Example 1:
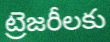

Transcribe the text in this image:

ట్రెజరీలకు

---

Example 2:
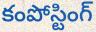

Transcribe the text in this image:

కంపోస్టింగ్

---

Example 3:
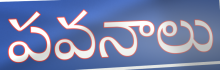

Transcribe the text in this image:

పవనాలు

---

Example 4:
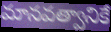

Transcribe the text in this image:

మానవత్వానికే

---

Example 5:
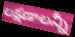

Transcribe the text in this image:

లక్షణాలన్నీ